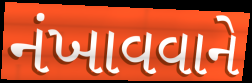
નંખાવવાને